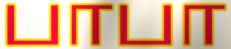
பாபா